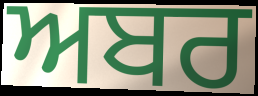
ਅਬਰ